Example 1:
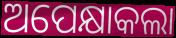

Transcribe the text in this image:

ଅପେକ୍ଷାକଲା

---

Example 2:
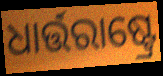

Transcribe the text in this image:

ଧାର୍ତ୍ତରାଷ୍ଟ୍ରେ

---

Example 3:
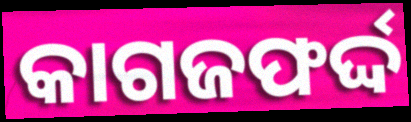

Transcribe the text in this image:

କାଗଜଫର୍ଦ୍ଦ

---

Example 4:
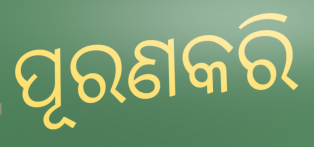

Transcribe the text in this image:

ପୂରଣକରି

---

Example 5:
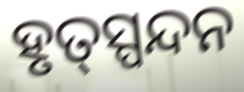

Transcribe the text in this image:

ହୃତ୍‌ସ୍ପନ୍ଦନ